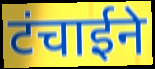
टंचाईने